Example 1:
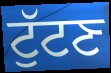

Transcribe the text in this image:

ਟੁੱਟਣ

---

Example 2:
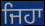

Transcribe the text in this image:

ਜਿਹਾ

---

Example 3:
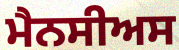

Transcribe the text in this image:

ਮੈਨਸੀਅਸ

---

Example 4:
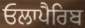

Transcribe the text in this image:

ਓਲਾਪੈਰਿਬ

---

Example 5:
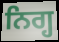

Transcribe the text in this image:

ਨਿਗ੍ਹ